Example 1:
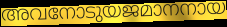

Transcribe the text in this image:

അവനോടുയജമാനനായ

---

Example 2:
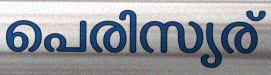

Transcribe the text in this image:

പെരിസ്യര്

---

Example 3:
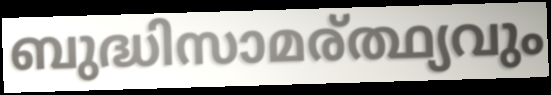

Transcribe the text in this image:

ബുദ്ധിസാമര്ത്ഥ്യവും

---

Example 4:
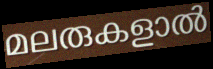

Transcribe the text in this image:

മലരുകളാൽ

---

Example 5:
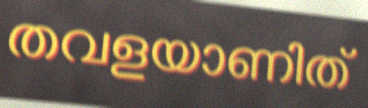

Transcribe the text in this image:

തവളയാണിത്